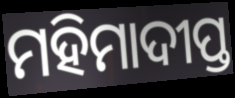
ମହିମାଦୀପ୍ତ